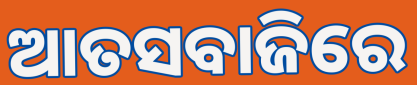
ଆତସବାଜିରେ